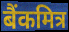
बैंकमित्र